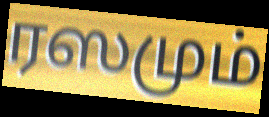
ரஸமும்